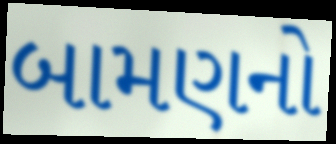
બામણનો